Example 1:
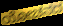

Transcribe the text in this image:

ಯೋಚನದ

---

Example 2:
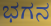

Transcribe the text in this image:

ಭಗನ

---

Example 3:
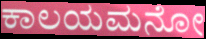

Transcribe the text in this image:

ಕಾಲಯಮನೋ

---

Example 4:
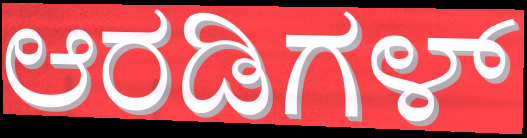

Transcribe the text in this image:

ಆರಡಿಗಳ್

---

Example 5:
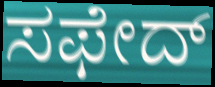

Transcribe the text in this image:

ಸಫೇದ್